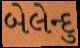
બેલેન્દુ